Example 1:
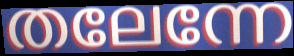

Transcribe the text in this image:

തലേന്നേ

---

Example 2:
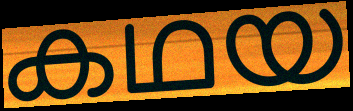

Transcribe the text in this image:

കഥയ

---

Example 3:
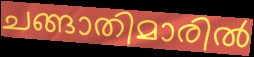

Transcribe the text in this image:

ചങ്ങാതിമാരിൽ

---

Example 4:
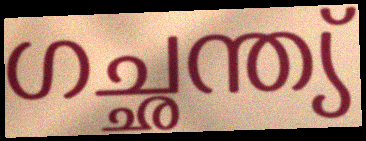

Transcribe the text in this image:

ഗച്ഛന്ത്യ്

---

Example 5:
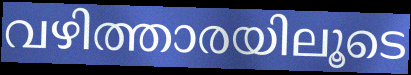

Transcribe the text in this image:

വഴിത്താരയിലൂടെ